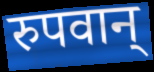
रुपवान्